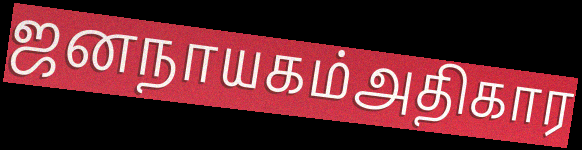
ஜனநாயகம்அதிகார